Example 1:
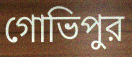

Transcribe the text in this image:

গোভিপুর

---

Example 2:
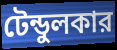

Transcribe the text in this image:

টেন্ডুলকার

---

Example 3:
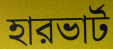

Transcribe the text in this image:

হারভার্ট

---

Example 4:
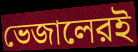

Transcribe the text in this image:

ভেজালেরই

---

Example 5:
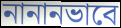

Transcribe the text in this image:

নানানভাবে